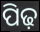
ପିଢ଼